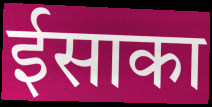
ईसाका